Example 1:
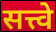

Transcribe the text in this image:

सत्त्वे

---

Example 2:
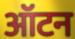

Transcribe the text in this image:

ऑटन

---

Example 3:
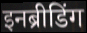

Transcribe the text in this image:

इनब्रीडिंग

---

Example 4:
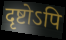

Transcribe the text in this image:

दृष्टोऽपि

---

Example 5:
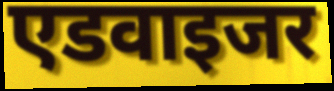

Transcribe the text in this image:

एडवाइजर